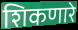
शिकणारे